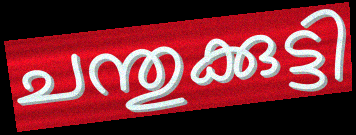
ചന്തുക്കുട്ടി